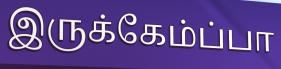
இருக்கேம்ப்பா